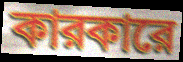
কারকারে